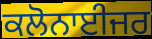
ਕਲੋਨਾਈਜਰ